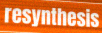
resynthesis